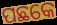
ପଛକେ